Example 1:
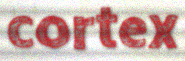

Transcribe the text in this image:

cortex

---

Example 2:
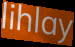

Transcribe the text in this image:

lihlay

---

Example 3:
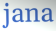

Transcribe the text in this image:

jana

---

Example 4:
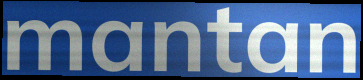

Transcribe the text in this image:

mantan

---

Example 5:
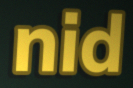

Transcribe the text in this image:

nid